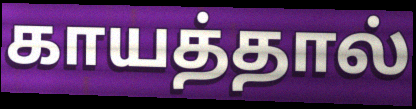
காயத்தால்